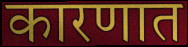
कारणात